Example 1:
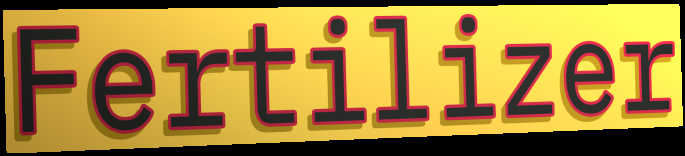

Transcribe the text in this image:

Fertilizer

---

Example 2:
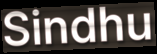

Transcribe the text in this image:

Sindhu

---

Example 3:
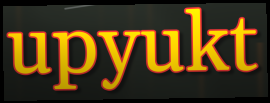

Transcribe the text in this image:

upyukt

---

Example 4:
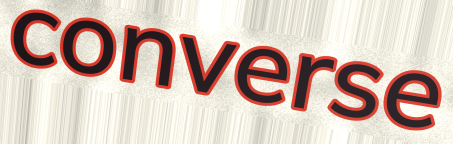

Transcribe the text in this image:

converse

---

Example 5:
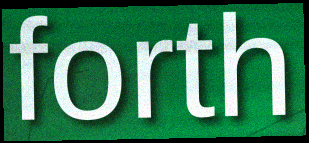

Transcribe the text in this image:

forth